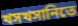
খসখসানিতে